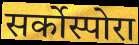
सर्कोस्पोरा